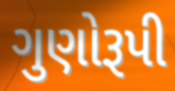
ગુણોરૂપી